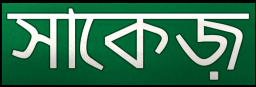
সাকেজ়